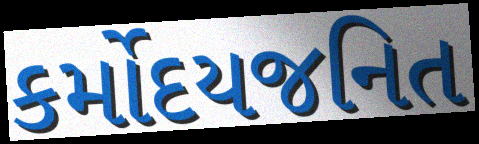
કર્મોદયજનિત